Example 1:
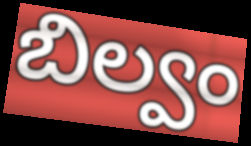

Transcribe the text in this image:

బిల్వం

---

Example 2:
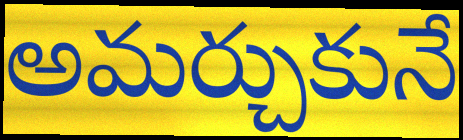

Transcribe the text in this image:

అమర్చుకునే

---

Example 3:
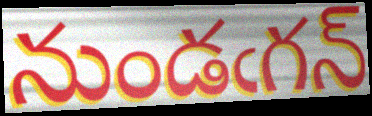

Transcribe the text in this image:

నుండఁగన్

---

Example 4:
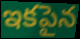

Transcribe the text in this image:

ఇకపైన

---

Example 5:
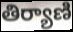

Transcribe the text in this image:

తిర్యాణి